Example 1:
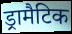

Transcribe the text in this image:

ड्रामैटिक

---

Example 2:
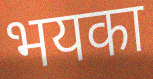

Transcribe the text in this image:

भयका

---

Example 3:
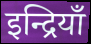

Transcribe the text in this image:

इन्द्रियाँ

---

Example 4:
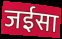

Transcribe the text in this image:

जईसा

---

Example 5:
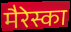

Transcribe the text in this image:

मैरेस्का